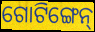
ଗୋଟିଙ୍ଗେନ୍